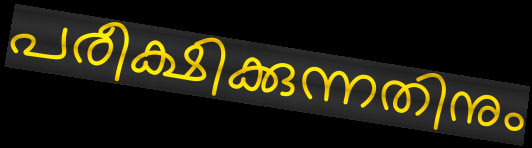
പരീക്ഷിക്കുന്നതിനും